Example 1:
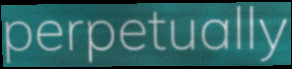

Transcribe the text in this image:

perpetually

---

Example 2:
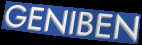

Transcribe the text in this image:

GENIBEN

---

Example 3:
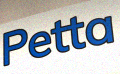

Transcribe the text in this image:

Petta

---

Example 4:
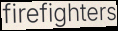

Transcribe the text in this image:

firefighters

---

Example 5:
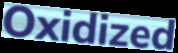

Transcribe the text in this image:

Oxidized